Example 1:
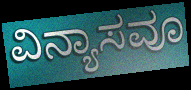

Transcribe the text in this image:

ವಿನ್ಯಾಸವೂ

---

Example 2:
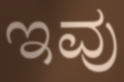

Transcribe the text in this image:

ಇವು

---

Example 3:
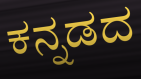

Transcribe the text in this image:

ಕನ್ನಡದ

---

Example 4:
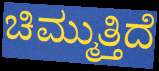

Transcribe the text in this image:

ಚಿಮ್ಮುತ್ತಿದೆ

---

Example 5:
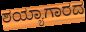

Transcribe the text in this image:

ಶಯ್ಯಾಗಾರದ